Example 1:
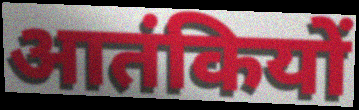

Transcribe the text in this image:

आतंकियों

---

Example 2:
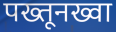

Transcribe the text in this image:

पख्तूनख्वा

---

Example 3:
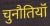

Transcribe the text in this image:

चुनौतियॉं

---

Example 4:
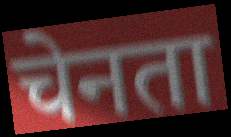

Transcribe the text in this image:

चेनता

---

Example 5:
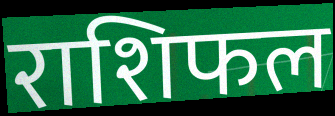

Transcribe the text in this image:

राशिफल